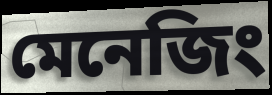
মেনেজিং